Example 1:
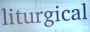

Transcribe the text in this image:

liturgical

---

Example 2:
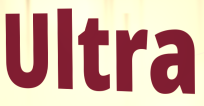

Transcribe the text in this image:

Ultra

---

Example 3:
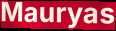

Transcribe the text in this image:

Mauryas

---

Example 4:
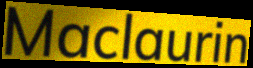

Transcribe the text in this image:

Maclaurin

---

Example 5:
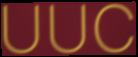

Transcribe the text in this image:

UUC